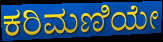
ಕರಿಮಣಿಯೇ